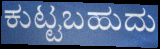
ಕುಟ್ಟಬಹುದು